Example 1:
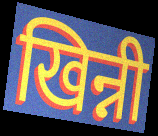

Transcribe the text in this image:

खिन्नी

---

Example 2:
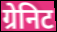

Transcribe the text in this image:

ग्रेनिट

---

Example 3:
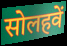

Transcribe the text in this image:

सोलहवें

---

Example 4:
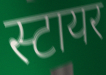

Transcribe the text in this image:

स्टायर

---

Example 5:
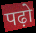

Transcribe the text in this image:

पढ़ो